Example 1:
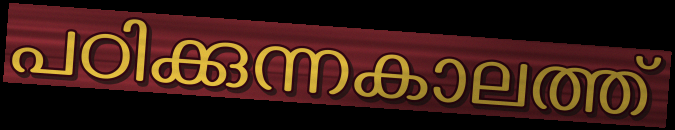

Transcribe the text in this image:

പഠിക്കുന്നകാലത്ത്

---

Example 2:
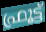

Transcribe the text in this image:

ഫ്രൂട്ട്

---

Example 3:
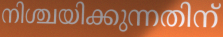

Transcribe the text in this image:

നിശ്ചയിക്കുന്നതിന്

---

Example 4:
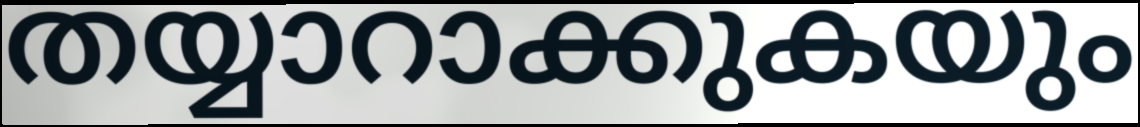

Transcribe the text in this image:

തയ്യാറാക്കുകയും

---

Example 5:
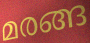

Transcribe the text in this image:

മരങ്ങ